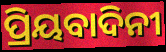
ପ୍ରିୟବାଦିନୀ